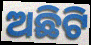
ଅଛିଟି